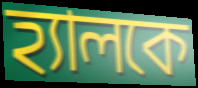
হ্যালকে